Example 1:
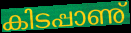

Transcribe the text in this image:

കിടപ്പാണു്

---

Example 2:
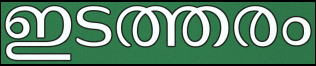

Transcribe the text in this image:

ഇടത്തരം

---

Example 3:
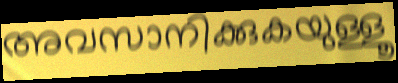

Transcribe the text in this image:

അവസാനിക്കുകയുള്ളൂ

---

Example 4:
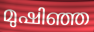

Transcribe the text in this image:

മുഷിഞ്ഞ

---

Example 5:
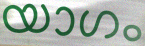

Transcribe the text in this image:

യാഗം